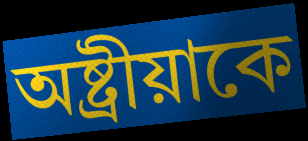
অষ্ট্রীয়াকে